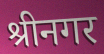
श्रीनगर